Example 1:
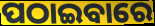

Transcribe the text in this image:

ପଠାଇବାରେ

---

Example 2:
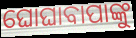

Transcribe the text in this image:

ଘୋଘାବାପାଙ୍କୁ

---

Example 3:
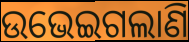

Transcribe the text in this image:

ଉଭେଇଗଲାଣି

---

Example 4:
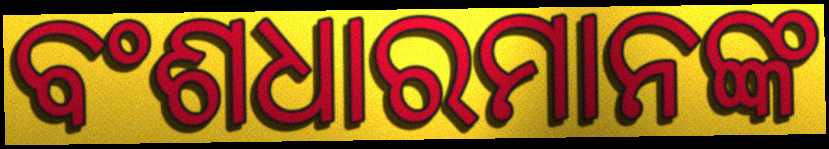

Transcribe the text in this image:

ବଂଶଧାରମାନଙ୍କ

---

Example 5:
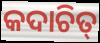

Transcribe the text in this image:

କଦାଚିତ୍